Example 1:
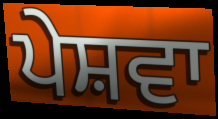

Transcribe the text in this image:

ਪੇਸ਼ਵਾ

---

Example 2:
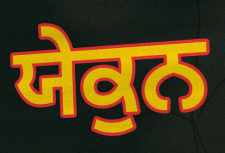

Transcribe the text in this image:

ਯੇਕੁਨ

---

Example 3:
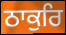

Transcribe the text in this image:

ਠਾਕੁਰਿ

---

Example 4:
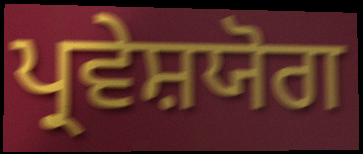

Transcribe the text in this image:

ਪ੍ਰਵੇਸ਼ਯੋਗ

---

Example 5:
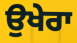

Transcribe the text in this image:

ਉਖੇਰਾ